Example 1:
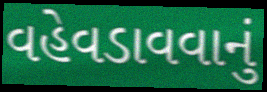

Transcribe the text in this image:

વહેવડાવવાનું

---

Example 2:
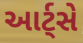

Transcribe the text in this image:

આર્ટ્સે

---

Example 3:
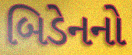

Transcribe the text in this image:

બિડેનનો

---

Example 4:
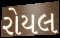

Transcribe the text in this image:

રોયલ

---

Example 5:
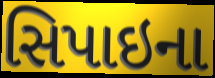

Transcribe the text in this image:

સિપાઇના